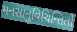
મનસાનુવિચિન્તિતો